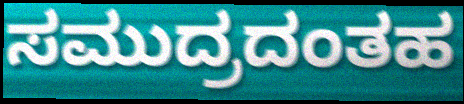
ಸಮುದ್ರದಂತಹ